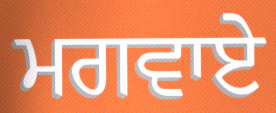
ਮਗਵਾਏ